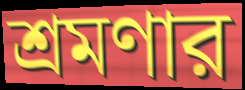
শ্রমণার